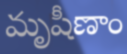
మృషీణాం